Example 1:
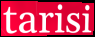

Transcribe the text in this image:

tarisi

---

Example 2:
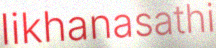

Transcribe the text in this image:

likhanasathi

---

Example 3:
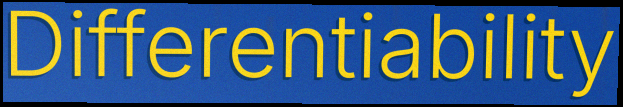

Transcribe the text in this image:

Differentiability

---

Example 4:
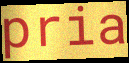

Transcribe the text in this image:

pria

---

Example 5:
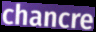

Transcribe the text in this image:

chancre